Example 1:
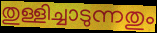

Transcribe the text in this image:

തുള്ളിച്ചാടുന്നതും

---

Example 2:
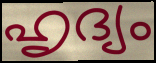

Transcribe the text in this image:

ഹൃദ്യം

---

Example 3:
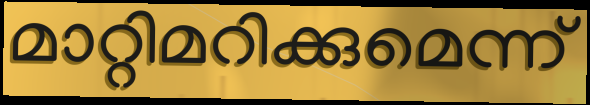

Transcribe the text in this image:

മാറ്റിമറിക്കുമെന്ന്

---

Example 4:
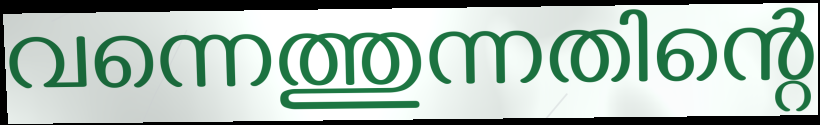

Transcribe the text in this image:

വന്നെത്തുന്നതിന്റെ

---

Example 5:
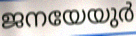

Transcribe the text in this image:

ജനയേയുർ